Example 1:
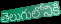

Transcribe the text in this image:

తెలుగులోనికి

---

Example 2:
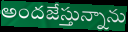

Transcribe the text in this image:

అందజేస్తున్నాను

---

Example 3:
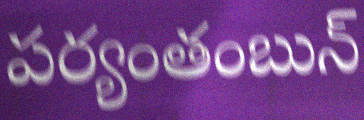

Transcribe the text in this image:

పర్యంతంబున్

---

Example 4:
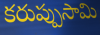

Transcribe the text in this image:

కరుప్పుసామి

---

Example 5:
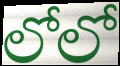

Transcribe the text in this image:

లోలో